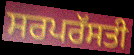
ਸਰਪਰੱਸਤੀ